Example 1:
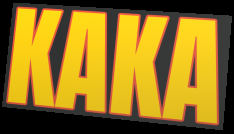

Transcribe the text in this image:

KAKA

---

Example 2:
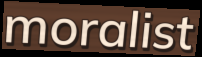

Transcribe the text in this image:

moralist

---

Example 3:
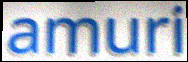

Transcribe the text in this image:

amuri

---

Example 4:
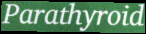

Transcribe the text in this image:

Parathyroid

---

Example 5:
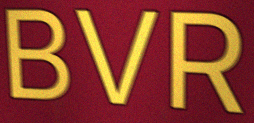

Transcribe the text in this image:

BVR